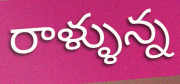
రాళ్ళున్న